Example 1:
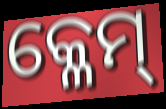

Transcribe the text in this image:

କ୍ଳେମ୍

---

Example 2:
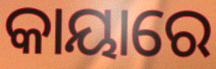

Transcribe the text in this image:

କାୟାରେ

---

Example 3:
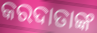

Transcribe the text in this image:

କରଦାତାଙ୍କ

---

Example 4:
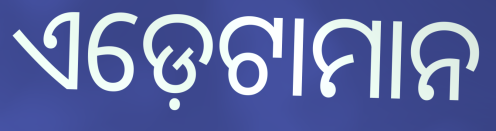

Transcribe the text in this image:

ଏଡ଼େଟାମାନ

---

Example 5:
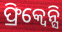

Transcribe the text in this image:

ଫ୍ରିକ୍ୱେନ୍ସି